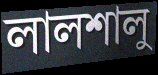
লালশালু